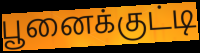
பூனைக்குட்டி